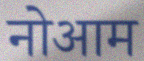
नोआम